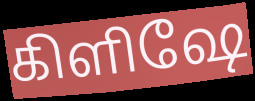
கிளிஷே